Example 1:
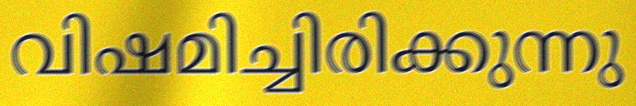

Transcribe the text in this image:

വിഷമിച്ചിരിക്കുന്നു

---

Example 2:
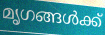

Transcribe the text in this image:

മൃഗങ്ങൾക്ക്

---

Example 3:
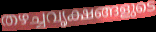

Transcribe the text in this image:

തഴച്ചവൃക്ഷങ്ങളുടെ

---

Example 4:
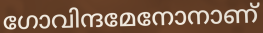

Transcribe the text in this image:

ഗോവിന്ദമേനോനാണ്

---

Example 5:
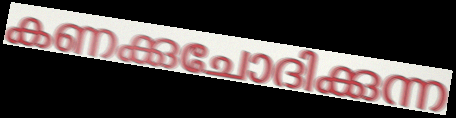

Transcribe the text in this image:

കണക്കുചോദിക്കുന്ന